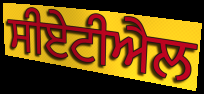
ਸੀਏਟੀਐਲ